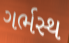
ગર્ભસ્થ